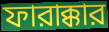
ফারাক্কার